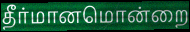
தீர்மானமொன்றை